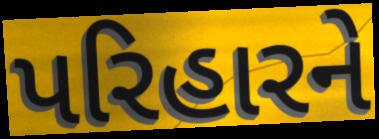
પરિહારને